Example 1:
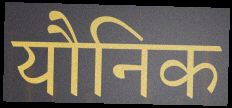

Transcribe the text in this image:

यौनिक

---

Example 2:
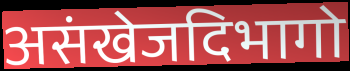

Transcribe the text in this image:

असंखेजदिभागो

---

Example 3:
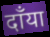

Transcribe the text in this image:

दाँया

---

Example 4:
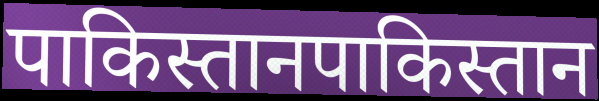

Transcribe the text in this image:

पाकिस्तानपाकिस्तान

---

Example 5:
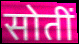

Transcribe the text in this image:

सोतीं